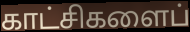
காட்சிகளைப்